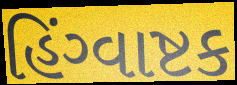
હિંગ્વાષ્ટક